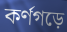
কর্ণগড়ে